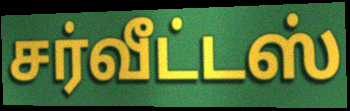
சர்வீட்டஸ்